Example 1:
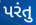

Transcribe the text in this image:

પરંતુ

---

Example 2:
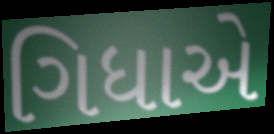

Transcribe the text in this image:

ગિધાએ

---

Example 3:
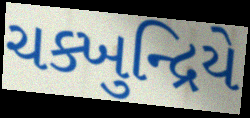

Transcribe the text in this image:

ચક્ખુન્દ્રિયે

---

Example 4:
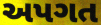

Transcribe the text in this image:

અપગત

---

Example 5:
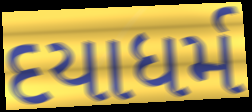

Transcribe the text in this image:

દયાધર્મ